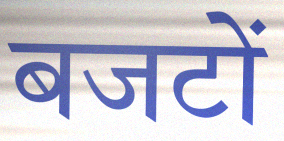
बजटों